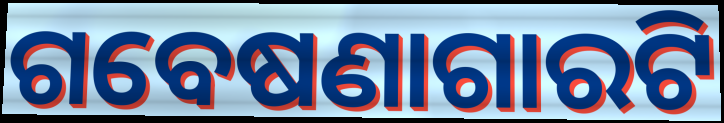
ଗବେଷଣାଗାରଟି